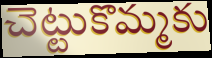
చెట్టుకొమ్మకు